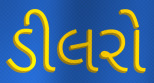
ડીલરો